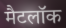
मैटलॉक